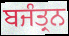
ਬਜੰਤ੍ਰਨ